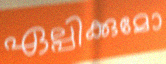
ഏല്പിക്കുമോ